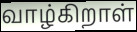
வாழ்கிறாள்